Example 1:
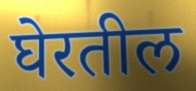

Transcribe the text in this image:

घेरतील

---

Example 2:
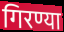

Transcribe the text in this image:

गिरण्या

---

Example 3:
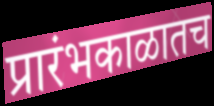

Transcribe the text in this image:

प्रारंभकाळातच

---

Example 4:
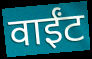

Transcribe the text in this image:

वाईंट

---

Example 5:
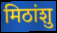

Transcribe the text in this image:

मिठांशु